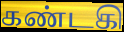
கண்டகி